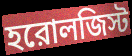
হরোলজিস্ট